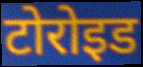
टोरोइड